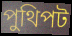
পুথিপট